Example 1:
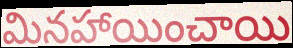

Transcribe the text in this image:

మినహాయించాయి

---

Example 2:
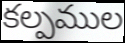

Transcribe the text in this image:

కల్పముల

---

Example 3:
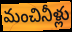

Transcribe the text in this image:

మంచినీళ్లు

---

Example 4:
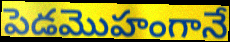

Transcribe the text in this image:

పెడమొహంగానే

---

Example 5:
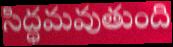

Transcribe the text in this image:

సిద్ధమవుతుంది